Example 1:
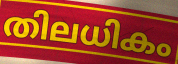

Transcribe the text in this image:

തിലധികം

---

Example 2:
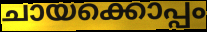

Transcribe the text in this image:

ചായക്കൊപ്പം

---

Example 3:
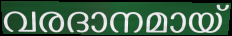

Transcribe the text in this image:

വരദാനമായ്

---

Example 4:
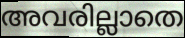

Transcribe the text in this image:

അവരില്ലാതെ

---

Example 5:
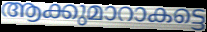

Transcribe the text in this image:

ആക്കുമാറാകട്ടെ